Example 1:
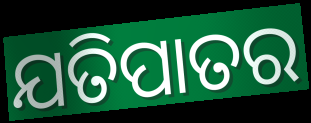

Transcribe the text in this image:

ଯତିପାତର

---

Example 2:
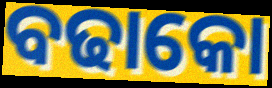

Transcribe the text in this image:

ବଢାକୋ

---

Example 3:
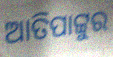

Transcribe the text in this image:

ଆତିପାଟ୍ଟୁର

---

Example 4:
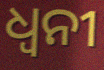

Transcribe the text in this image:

ଧ୍ୱନୀ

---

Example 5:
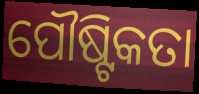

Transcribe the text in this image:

ପୌଷ୍ଟିକତା